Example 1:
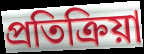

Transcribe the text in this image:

প্রতিক্রিয়া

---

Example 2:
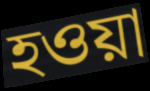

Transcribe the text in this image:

হওয়া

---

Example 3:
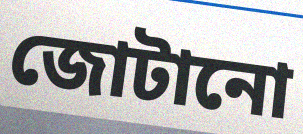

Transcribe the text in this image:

জোটানো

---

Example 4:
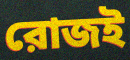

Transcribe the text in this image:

রোজই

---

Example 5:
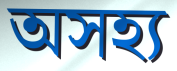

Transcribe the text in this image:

অসহ্য